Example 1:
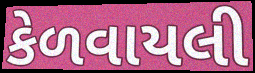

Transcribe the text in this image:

કેળવાયલી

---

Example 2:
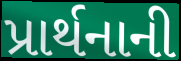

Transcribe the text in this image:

પ્રાર્થનાની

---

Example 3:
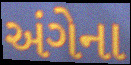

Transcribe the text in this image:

અંગેના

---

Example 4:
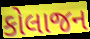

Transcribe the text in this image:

કોલાજન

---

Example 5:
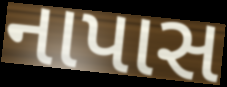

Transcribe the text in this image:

નાપાસ